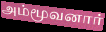
அம்மூவனார்